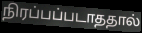
நிரப்பப்படாததால்